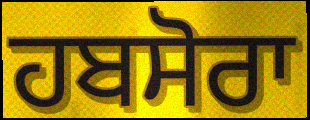
ਹਬਸੋਰਾ